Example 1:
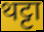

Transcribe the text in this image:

थट्टा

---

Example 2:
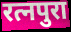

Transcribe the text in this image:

रत्नपुरा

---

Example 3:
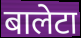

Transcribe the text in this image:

बालेटा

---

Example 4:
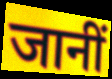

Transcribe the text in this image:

जानीं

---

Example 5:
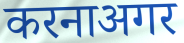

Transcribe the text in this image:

करनाअगर